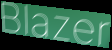
Blazer